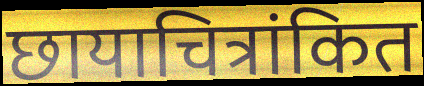
छायाचित्रांकित